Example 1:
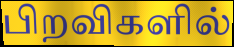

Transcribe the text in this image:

பிறவிகளில்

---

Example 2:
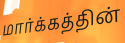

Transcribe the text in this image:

மார்க்கத்தின்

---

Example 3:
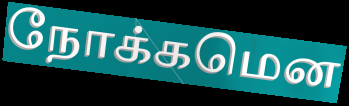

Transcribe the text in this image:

நோக்கமென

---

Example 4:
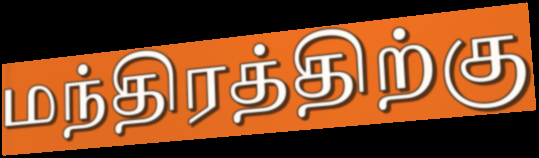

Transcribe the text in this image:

மந்திரத்திற்கு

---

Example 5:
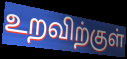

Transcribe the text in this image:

உறவிற்குள்